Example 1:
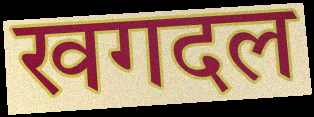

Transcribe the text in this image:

खगदल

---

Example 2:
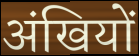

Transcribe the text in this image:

अंखियों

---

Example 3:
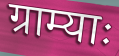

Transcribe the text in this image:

ग्राम्याः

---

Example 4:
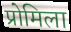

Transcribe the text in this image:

प्रोमिला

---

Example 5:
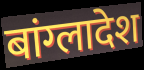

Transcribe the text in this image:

बांग्‍लादेश